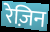
रेज़िन